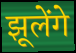
झूलेंगे